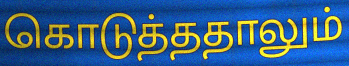
கொடுத்ததாலும்